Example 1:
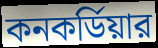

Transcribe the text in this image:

কনকর্ডিয়ার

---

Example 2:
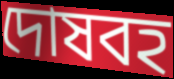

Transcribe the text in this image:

দোষবহ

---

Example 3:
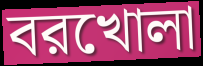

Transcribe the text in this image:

বরখোলা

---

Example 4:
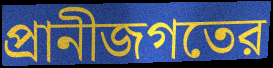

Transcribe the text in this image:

প্রানীজগতের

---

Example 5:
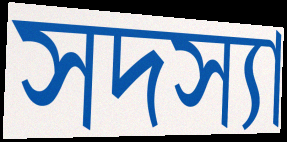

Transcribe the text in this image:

সদস্যা